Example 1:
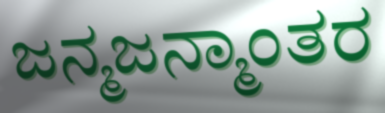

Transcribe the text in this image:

ಜನ್ಮಜನ್ಮಾಂತರ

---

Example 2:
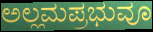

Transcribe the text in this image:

ಅಲ್ಲಮಪ್ರಭುವೂ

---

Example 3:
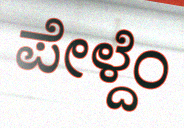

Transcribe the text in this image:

ಪೇಳ್ದೆಂ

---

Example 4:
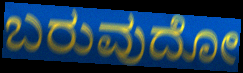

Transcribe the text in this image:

ಬರುವುದೋ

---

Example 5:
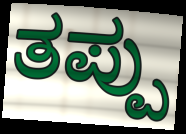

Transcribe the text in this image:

ತಪ್ಪು